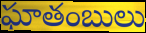
ఘాతంబులు